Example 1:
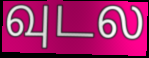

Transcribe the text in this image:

வுடல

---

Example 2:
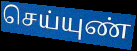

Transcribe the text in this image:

செய்யுண்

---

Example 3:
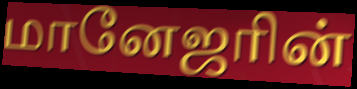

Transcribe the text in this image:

மானேஜரின்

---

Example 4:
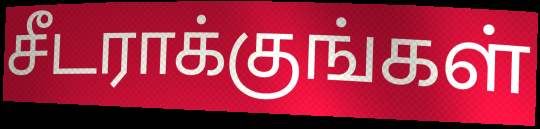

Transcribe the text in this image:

சீடராக்குங்கள்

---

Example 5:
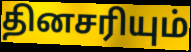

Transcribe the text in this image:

தினசரியும்